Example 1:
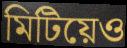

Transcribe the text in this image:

মিটিয়েও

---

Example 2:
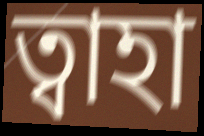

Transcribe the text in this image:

ত্বাহা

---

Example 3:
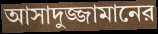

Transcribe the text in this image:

আসাদুজ্জামানের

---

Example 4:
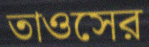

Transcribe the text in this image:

তাওসের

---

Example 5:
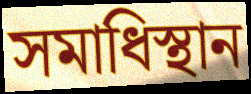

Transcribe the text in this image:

সমাধিস্থান